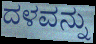
ದಳವನ್ನು